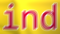
ind